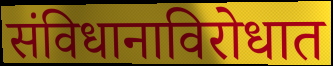
संविधानाविरोधात